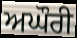
ਅਘੌਰੀ